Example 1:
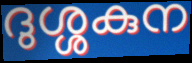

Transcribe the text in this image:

ദുശ്ശകുന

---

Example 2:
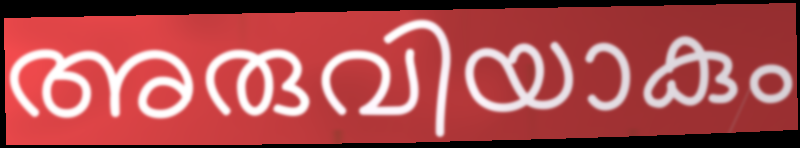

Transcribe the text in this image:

അരുവിയാകും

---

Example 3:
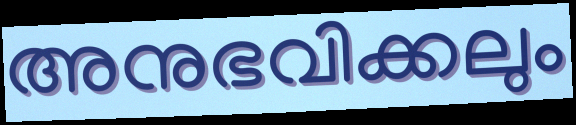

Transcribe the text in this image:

അനുഭവിക്കലും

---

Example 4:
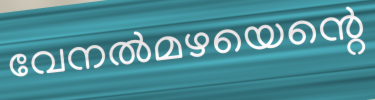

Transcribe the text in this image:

വേനൽമഴയെന്റെ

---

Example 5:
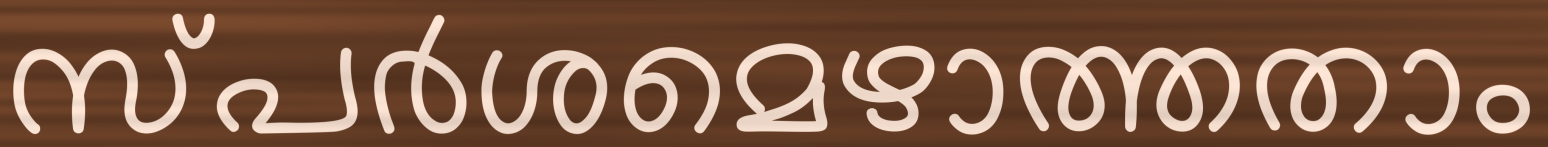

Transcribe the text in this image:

സ്പർശമെഴാത്തതാം